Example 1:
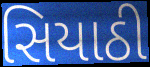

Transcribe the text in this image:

સિયાઠી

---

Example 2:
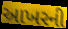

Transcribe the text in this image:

આખરની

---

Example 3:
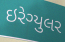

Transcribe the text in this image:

ઇરેગ્યુલર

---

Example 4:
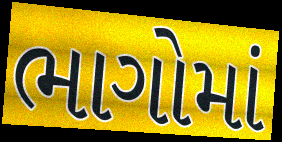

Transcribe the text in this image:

ભાગોમાં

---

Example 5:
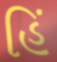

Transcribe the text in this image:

હિં